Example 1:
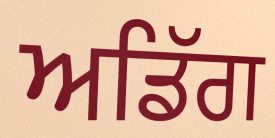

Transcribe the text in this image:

ਅਡਿੱਗ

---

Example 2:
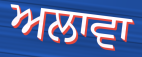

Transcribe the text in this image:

ਅਲਾਵਾ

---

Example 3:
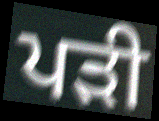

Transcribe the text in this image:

ਪਡ਼ੀ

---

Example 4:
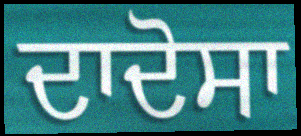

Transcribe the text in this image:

ਦਾਦੋਸਾ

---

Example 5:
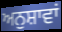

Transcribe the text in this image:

ਅਨੁਸ਼ਾਵਾਂ